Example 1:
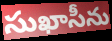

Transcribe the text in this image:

సుఖాసీను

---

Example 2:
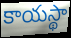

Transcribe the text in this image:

కాయస్థా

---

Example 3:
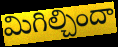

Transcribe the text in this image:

మిగిల్చిందా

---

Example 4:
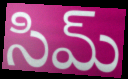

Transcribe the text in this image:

సిమ్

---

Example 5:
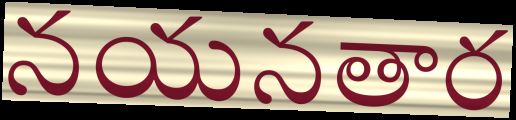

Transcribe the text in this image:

నయనతార